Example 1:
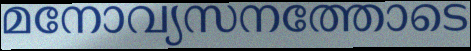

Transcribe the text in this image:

മനോവ്യസനത്തോടെ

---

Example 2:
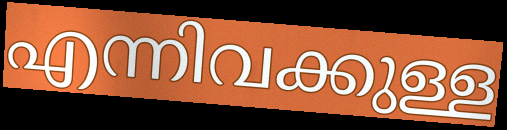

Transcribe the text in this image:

എന്നിവക്കുള്ള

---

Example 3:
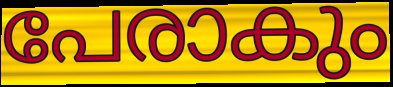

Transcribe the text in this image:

പേരാകും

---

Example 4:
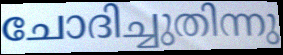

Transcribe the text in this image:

ചോദിച്ചുതിന്നു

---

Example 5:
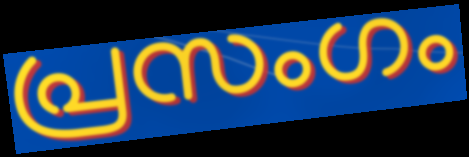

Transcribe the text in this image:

പ്രസംഗം